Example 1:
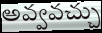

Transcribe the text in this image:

అవ్వవచ్చు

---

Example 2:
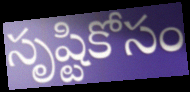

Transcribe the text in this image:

సృష్టికోసం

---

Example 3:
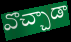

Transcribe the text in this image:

వొచ్చాడా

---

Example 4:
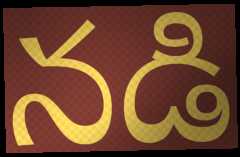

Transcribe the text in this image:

నడి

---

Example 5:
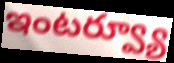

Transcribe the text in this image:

ఇంటర్వ్యూ